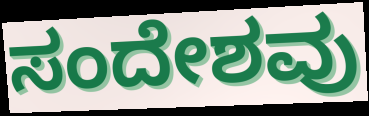
ಸಂದೇಶವು